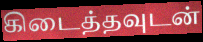
கிடைத்தவுடன்